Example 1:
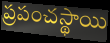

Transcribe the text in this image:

ప్రపంచస్థాయి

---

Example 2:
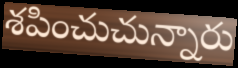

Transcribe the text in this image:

శపించుచున్నారు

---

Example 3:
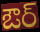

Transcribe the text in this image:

ఔర్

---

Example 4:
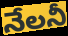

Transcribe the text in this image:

నేలనీ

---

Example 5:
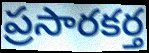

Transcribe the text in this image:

ప్రసారకర్త